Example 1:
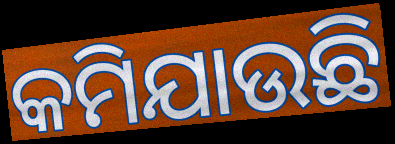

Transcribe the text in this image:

କମିଯାଉଛି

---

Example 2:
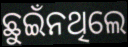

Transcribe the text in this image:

ଛୁଇଁନଥିଲେ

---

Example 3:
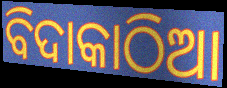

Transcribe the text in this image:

ବିଦାକାଠିଆ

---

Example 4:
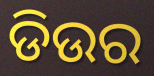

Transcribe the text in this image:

ଡିଉର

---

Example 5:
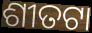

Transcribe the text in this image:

ଶୀତଟା